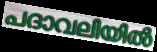
പദാവലിയിൽ